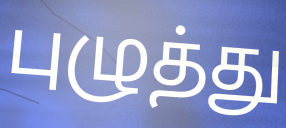
புழுத்து